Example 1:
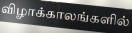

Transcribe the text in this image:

விழாக்காலங்களில்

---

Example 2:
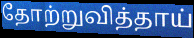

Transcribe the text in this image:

தோற்றுவித்தாய்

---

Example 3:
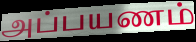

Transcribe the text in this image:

அப்பயணம்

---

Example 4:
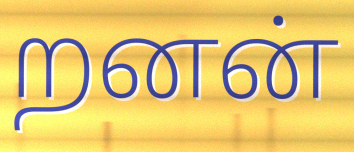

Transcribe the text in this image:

றனன்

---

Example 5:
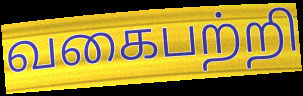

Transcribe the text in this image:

வகைபற்றி